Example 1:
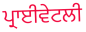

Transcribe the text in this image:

ਪ੍ਰਾਈਵੇਟਲੀ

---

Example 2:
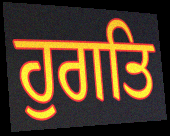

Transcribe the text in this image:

ਹੁਗਤਿ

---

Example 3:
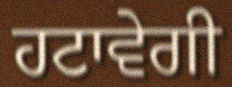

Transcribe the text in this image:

ਹਟਾਵੇਗੀ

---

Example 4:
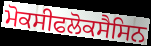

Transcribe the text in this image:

ਮੋਕਸੀਫਲੋਕਸੈਸਿਨ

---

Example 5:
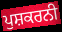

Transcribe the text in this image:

ਪੁਸ਼ਕਰਨੀ